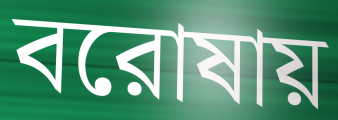
বরোষায়